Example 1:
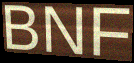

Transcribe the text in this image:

BNF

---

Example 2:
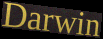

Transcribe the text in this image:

Darwin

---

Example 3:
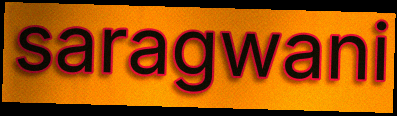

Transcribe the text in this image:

saragwani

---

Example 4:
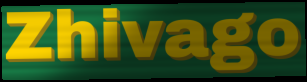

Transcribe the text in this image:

Zhivago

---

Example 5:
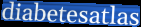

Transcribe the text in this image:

diabetesatlas